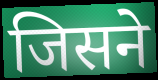
जिसने